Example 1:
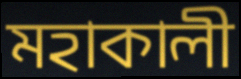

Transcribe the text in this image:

মহাকালী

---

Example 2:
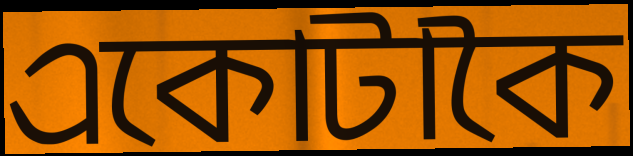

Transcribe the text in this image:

একোটাকৈ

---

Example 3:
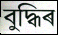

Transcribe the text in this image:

বুদ্ধিৰ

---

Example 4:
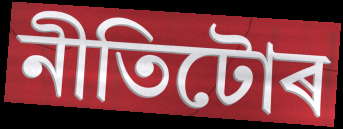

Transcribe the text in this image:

নীতিটোৰ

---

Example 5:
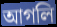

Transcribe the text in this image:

আগলি